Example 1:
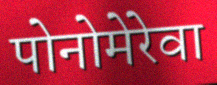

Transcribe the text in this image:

पोनोमेरेवा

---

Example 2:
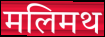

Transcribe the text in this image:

मलिमथ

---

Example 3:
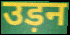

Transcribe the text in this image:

उड़न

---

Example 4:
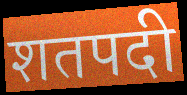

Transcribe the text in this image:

शतपदी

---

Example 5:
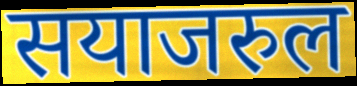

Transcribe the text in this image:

सयाजरुल